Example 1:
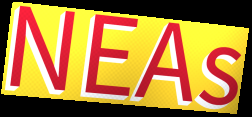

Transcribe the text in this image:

NEAs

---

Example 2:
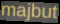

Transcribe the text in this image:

majbut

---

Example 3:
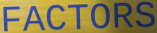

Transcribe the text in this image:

FACTORS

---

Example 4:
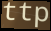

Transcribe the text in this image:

ttp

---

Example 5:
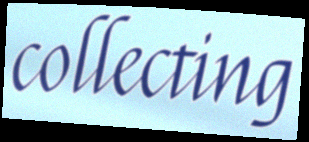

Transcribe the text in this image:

collecting